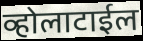
व्होलाटाईल